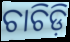
ଚାଚିଡ଼ି